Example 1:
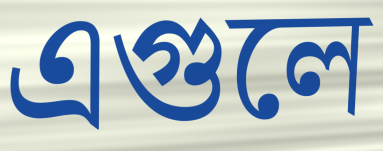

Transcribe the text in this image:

এগুলে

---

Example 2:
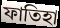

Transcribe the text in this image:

ফাতিহা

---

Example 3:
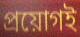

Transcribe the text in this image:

প্রয়োগই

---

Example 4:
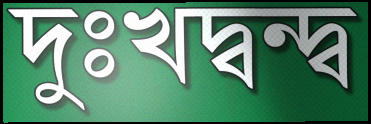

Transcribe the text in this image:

দুঃখদ্বন্দ্ব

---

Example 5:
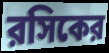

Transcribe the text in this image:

রসিকের